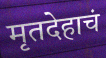
मृतदेहाचं